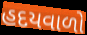
હદયવાળો